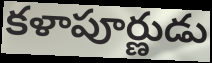
కళాపూర్ణుడు